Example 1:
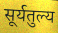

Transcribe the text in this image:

सूर्यतुल्य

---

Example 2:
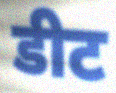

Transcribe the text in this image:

डीट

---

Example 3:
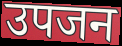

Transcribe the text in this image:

उपजन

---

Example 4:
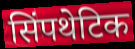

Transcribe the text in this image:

सिंपथेटिक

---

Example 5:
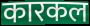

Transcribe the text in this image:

कारकल